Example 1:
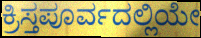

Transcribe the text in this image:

ಕ್ರಿಸ್ತಪೂರ್ವದಲ್ಲಿಯೇ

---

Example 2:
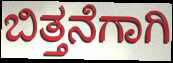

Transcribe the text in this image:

ಬಿತ್ತನೆಗಾಗಿ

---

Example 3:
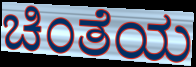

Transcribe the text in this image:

ಚಿಂತೆಯ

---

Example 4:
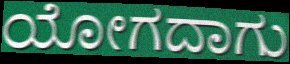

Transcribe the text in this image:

ಯೋಗದಾಗು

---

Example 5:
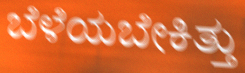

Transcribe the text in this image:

ಬೆಳೆಯಬೇಕಿತ್ತು